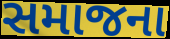
સમાજના